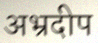
अभ्रदीप